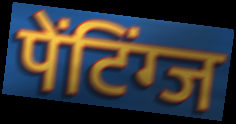
पेंटिंग्ज